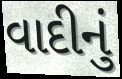
વાદીનું